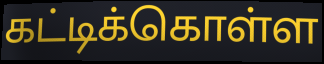
கட்டிக்கொள்ள